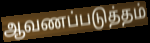
ஆவணப்படுத்தம்